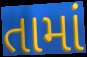
તામાં